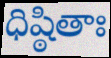
ధిష్ఠితాః